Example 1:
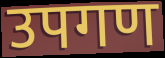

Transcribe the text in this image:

उपगण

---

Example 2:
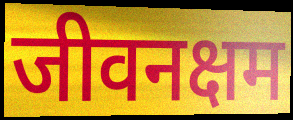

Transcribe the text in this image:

जीवनक्षम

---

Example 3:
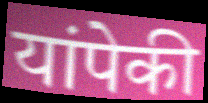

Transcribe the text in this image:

यांपेकी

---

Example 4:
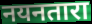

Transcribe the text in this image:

नयनतारा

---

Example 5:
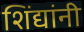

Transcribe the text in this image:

शिंद्यांनी